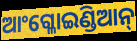
ଆଂଗ୍ଳୋଇଣ୍ଡିଆନ୍